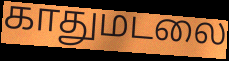
காதுமடலை